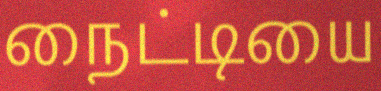
நைட்டியை